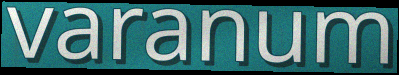
varanum